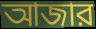
আজার